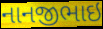
નાનજીભાઇ